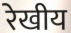
रेखीय